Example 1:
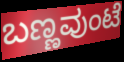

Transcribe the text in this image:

ಬಣ್ಣವುಂಟೆ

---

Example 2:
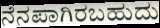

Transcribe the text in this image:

ನೆನಪಾಗಿರಬಹುದು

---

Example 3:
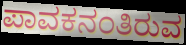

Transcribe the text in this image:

ಪಾವಕನಂತಿರುವ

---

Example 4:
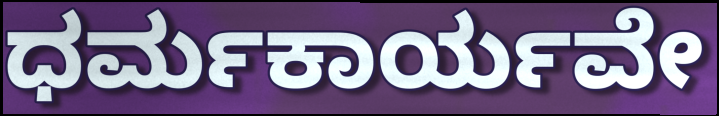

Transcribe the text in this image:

ಧರ್ಮಕಾರ್ಯವೇ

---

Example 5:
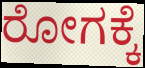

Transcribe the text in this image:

ರೋಗಕ್ಕೆ